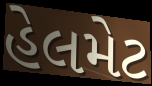
હેલમેટ